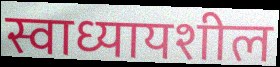
स्वाध्यायशील